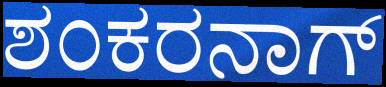
ಶಂಕರನಾಗ್